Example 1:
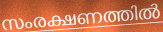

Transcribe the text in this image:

സംരക്ഷണത്തിൽ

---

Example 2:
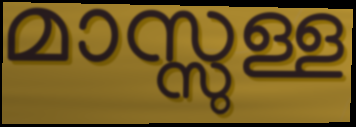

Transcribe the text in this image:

മാസ്സുള്ള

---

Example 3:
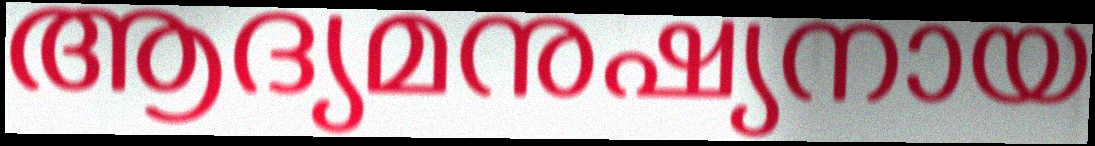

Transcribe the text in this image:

ആദ്യമനുഷ്യനായ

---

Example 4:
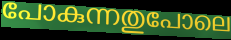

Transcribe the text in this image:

പോകുന്നതുപോലെ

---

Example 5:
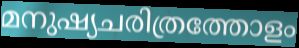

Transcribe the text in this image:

മനുഷ്യചരിത്രത്തോളം